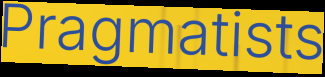
Pragmatists